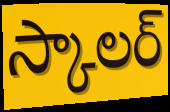
స్కాలర్